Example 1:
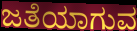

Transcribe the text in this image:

ಜತೆಯಾಗುವ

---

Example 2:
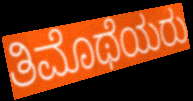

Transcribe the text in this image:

ತಿಮೊಥೆಯರು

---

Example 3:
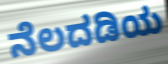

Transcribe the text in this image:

ನೆಲದಡಿಯ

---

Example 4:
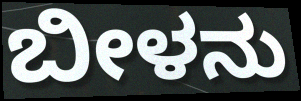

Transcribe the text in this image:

ಬೀಳನು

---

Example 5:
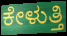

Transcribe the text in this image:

ಕೇಳುತ್ತಿ